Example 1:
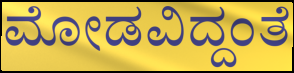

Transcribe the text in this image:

ಮೋಡವಿದ್ದಂತೆ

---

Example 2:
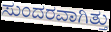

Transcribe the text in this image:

ಸುಂದರವಾಗಿತ್ತು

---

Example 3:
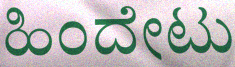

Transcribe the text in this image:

ಹಿಂದೇಟು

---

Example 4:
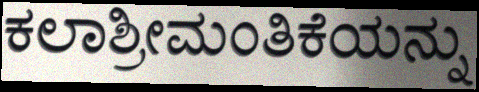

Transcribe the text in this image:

ಕಲಾಶ್ರೀಮಂತಿಕೆಯನ್ನು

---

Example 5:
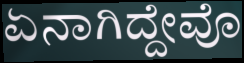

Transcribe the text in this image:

ಏನಾಗಿದ್ದೇವೊ